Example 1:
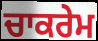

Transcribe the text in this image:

ਚਾਕਰੇਮ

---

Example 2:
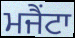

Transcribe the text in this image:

ਮਜੈਂਟਾ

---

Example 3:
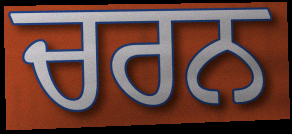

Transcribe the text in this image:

ਚਰਨ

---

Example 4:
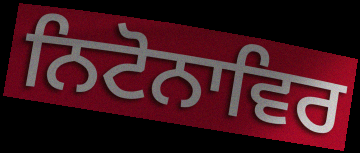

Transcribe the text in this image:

ਨਿਟੋਨਾਵਿਰ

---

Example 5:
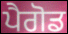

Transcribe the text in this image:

ਪੈਗੋਡ